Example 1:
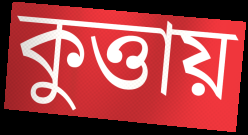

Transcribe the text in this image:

কুত্তায়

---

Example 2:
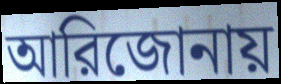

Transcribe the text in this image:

আরিজোনায়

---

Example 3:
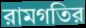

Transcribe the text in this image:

রামগতির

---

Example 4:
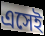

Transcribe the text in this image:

এসেই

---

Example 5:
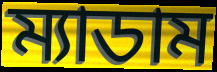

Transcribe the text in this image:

ম্যাডাম